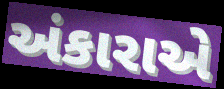
અંકારાએ